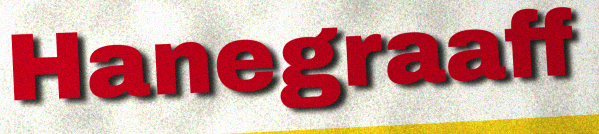
Hanegraaff